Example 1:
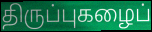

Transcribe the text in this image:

திருப்புகழைப்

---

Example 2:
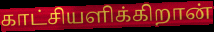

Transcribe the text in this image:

காட்சியளிக்கிறான்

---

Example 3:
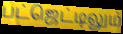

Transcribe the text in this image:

பட்ஜெட்டிலும்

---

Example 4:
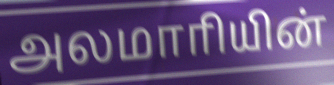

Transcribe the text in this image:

அலமாரியின்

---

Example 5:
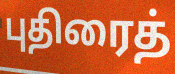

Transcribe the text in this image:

புதிரைத்